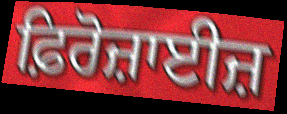
ਫ਼ਿਰੋਜ਼ਾਈਜ਼